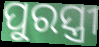
ପୁରସ୍ତ୍ରୀ